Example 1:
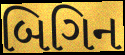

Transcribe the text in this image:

બિગિન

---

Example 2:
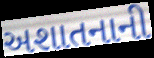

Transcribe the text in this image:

અશાતનાની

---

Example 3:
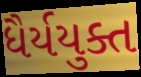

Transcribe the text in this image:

ધૈર્યયુક્ત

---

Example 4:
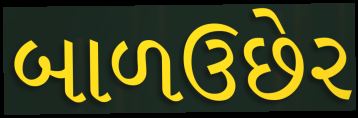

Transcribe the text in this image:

બાળઉછેર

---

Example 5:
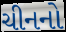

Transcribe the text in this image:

ચીનનો